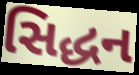
સિદ્ધન